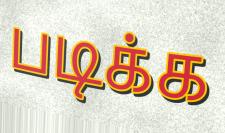
படிக்க